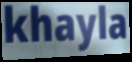
khayla